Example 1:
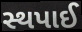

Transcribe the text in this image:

સ્થપાઈ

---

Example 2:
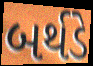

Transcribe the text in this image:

બર્થડે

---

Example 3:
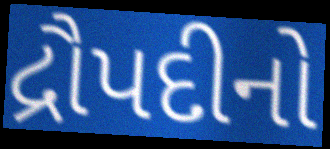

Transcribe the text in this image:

દ્રૌપદીનો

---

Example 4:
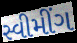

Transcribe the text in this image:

સ્વીમીંગ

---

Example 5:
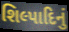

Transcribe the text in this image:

શિલ્પાદિનું